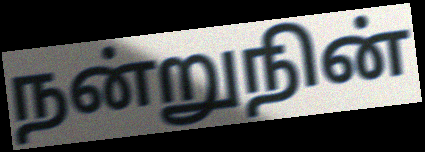
நன்றுநின்